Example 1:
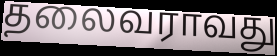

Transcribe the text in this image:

தலைவராவது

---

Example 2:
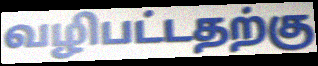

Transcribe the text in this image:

வழிபட்டதற்கு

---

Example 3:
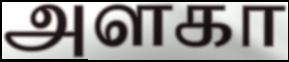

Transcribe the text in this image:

அளகா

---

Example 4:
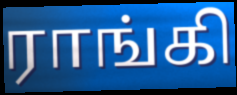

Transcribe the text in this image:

ராங்கி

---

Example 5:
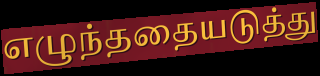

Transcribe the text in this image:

எழுந்ததையடுத்து